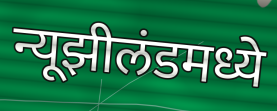
न्यूझीलंडमध्ये